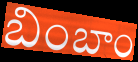
బింబాం